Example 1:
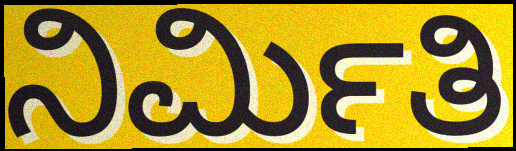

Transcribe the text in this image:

ನಿರ್ಮಿತಿ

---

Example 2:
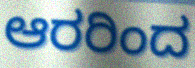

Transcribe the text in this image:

ಆರರಿಂದ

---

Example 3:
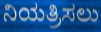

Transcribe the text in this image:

ನಿಯತ್ರಿಸಲು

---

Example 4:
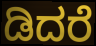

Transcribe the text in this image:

ಡಿದರೆ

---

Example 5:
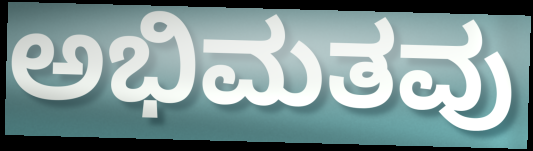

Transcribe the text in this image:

ಅಭಿಮತವು